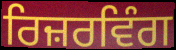
ਰਿਜ਼ਰਵਿੰਗ